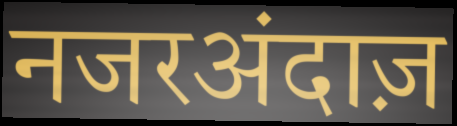
नजरअंदाज़